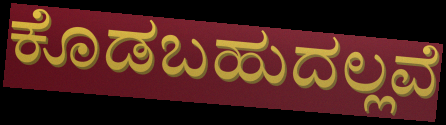
ಕೊಡಬಹುದಲ್ಲವೆ